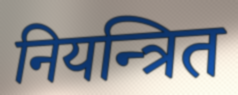
नियन्त्रित